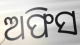
ଅଫିସ